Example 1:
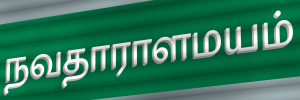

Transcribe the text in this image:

நவதாராளமயம்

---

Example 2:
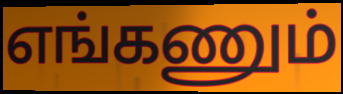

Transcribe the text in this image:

எங்கணும்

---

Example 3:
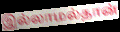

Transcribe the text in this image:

இல்லாமல்தான்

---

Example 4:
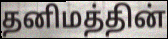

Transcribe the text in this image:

தனிமத்தின்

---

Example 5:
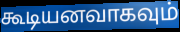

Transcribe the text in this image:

கூடியனவாகவும்